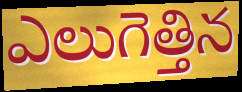
ఎలుగెత్తిన